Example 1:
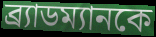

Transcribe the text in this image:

ব্র্যাডম্যানকে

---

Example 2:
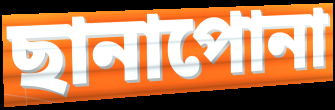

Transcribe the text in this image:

ছানাপোনা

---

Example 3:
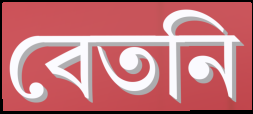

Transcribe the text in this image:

বেতনি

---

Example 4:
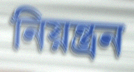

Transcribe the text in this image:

নিয়ন্ত্রন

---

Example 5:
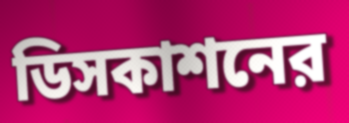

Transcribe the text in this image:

ডিসকাশনের